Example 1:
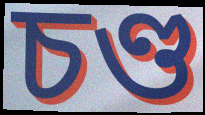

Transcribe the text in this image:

চণ্ড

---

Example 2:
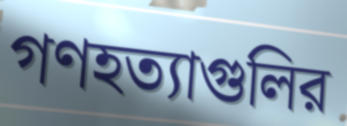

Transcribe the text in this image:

গণহত্যাগুলির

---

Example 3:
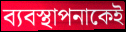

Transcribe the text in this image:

ব্যবস্থাপনাকেই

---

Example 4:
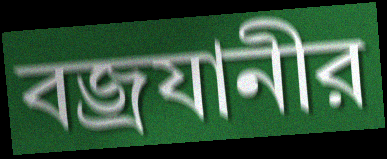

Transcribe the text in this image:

বজ্রযানীর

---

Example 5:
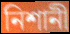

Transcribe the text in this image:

নিশানী